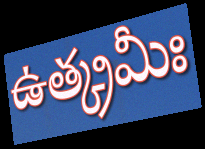
ఉత్క్రమీః